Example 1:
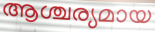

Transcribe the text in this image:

ആശ്ചര്യമായ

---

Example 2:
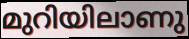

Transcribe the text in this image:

മുറിയിലാണു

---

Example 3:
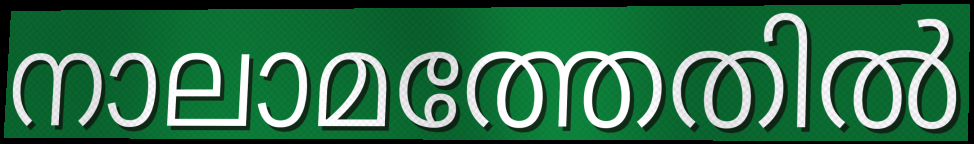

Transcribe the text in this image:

നാലാമത്തേതിൽ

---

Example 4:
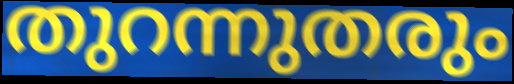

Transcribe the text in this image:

തുറന്നുതരും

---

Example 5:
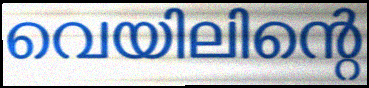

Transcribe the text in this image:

വെയിലിന്റെ